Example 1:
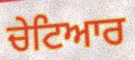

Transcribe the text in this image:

ਚੇਟਿਆਰ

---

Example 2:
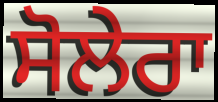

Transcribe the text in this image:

ਸੋਲੇਰਾ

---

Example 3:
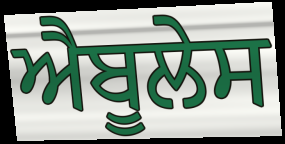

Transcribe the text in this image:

ਐਬੂਲੇਸ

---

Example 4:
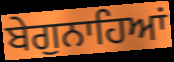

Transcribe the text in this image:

ਬੇਗੁਨਾਹਿਆਂ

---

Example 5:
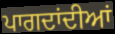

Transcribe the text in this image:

ਪਾਗਦਾਂਦੀਆਂ